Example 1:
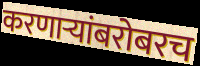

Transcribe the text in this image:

करणाऱ्यांबरोबरच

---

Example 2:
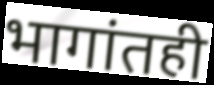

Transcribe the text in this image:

भागांतही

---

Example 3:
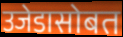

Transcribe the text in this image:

उजेडासोबत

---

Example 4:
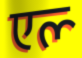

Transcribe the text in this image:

एल्‍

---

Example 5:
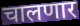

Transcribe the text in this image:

चालणार